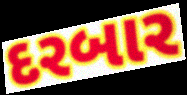
દરબાર